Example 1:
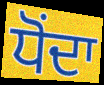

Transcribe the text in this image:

ਧੋਂਦਾ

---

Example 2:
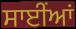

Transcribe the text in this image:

ਸਾਈਂਆਂ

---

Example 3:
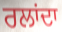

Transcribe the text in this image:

ਰਲਾਂਦਾ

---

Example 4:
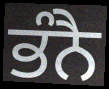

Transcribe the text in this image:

ਭੰਨੈ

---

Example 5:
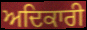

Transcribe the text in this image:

ਅਦਿਕਾਰੀ